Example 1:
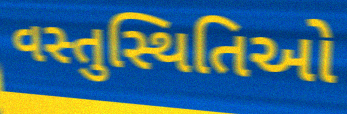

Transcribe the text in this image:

વસ્તુસ્થિતિઓ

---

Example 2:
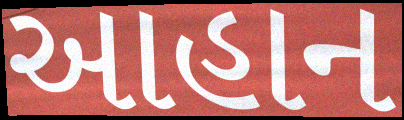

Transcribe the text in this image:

આહાન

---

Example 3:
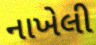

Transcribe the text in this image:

નાખેલી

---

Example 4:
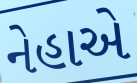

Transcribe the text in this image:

નેહાએ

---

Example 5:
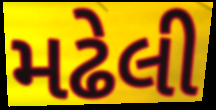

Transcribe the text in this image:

મઢેલી